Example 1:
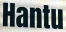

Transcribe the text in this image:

Hantu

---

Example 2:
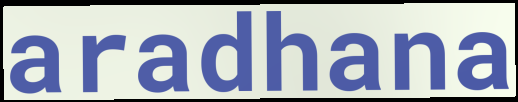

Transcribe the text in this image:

aradhana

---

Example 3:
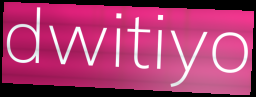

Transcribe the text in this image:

dwitiyo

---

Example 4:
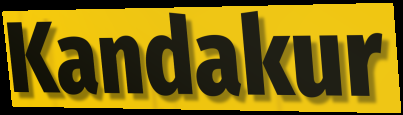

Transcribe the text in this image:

Kandakur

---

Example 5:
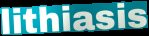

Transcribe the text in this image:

lithiasis